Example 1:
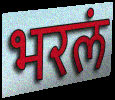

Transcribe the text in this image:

भरलं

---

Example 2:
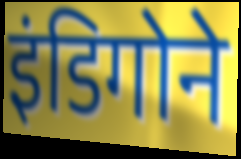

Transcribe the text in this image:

इंडिगोने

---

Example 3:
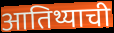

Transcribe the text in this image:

आतिथ्याची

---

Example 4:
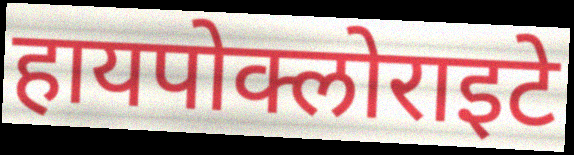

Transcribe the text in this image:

हायपोक्लोराइटे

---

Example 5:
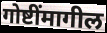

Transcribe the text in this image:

गोष्टींमागील